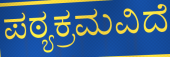
ಪಠ್ಯಕ್ರಮವಿದೆ